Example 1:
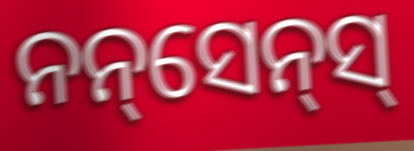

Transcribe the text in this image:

ନନ୍‌ସେନ୍‌ସ୍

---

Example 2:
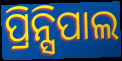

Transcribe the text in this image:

ପ୍ରିନ୍ସିପାଲ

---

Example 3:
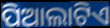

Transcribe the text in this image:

ପିଆଲାଟିଏ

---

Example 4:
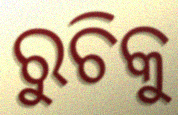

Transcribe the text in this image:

ରୁଚିକୁ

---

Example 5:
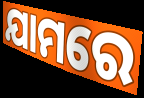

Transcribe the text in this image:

ଯାମରେ